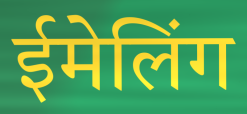
ईमेलिंग